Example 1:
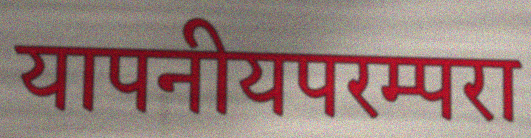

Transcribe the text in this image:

यापनीयपरम्परा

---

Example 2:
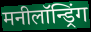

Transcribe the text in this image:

मनीलॉन्ड्रिंग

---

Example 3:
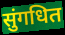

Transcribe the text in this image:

सुंगधित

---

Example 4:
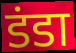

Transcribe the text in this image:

डंडा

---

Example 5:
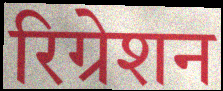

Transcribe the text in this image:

रिग्रेशन